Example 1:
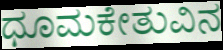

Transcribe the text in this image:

ಧೂಮಕೇತುವಿನ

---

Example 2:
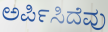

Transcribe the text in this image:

ಅರ್ಪಿಸಿದೆವು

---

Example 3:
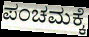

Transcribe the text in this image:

ಪಂಚಮಕ್ಕೆ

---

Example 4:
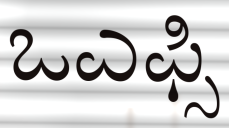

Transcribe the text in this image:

ಒಎಫ್ಸಿ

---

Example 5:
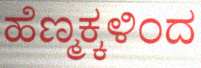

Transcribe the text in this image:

ಹೆಣ್ಮಕ್ಕಳಿಂದ